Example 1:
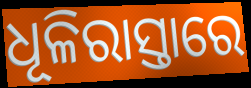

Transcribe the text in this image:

ଧୂଳିରାସ୍ତାରେ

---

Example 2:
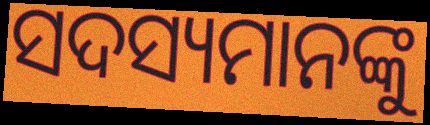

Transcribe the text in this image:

ସଦସ୍ୟମାନଙ୍କୁ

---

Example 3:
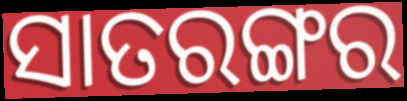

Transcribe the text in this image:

ସାତରଙ୍ଗର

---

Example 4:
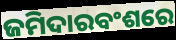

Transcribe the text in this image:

ଜମିଦାରବଂଶରେ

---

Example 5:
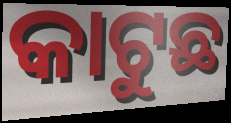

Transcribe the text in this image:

କାଟୁଛ